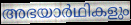
അഭയാർഥികളും